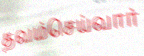
தவம்செய்வார்